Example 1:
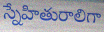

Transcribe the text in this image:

స్నేహితురాలిగా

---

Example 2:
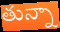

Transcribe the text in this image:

తున్నా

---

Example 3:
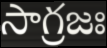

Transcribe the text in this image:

సాగ్రజః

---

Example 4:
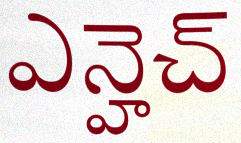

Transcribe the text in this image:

ఎన్హెచ్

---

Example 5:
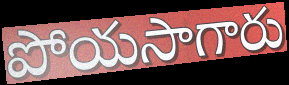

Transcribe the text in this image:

పోయసాగారు